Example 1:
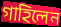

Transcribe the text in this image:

গাহিলেন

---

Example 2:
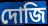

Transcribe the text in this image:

দোজি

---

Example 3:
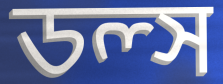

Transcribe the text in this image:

ডল্স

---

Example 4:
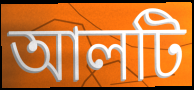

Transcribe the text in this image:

আলটি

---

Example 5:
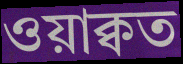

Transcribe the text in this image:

ওয়াক্বত